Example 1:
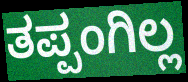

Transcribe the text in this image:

ತಪ್ಪಂಗಿಲ್ಲ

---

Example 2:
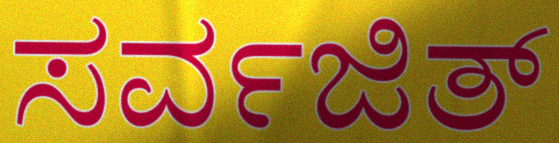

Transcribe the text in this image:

ಸರ್ವಜಿತ್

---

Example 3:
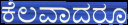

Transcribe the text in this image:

ಕೆಲವಾದರೂ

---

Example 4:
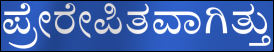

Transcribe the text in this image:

ಪ್ರೇರೇಪಿತವಾಗಿತ್ತು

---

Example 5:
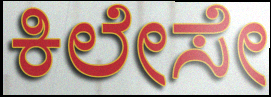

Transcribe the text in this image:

ಕಿಲೇಸೇ